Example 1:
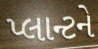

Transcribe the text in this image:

પ્લાન્ટને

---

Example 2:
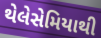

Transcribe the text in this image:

થેલેસેમિયાથી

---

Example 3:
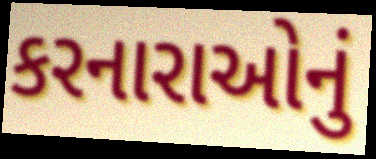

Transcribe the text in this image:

કરનારાઓનું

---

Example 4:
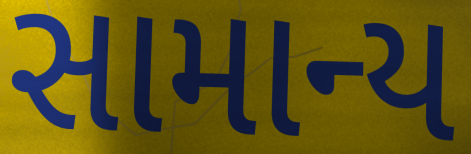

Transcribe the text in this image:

સામાન્ય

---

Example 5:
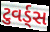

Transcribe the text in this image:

ટુવર્ડ્સ